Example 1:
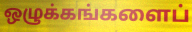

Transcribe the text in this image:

ஒழுக்கங்களைப்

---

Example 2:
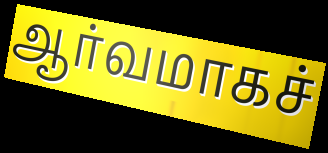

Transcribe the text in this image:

ஆர்வமாகச்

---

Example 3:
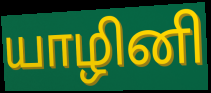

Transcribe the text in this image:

யாழினி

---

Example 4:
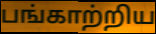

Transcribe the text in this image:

பங்காற்றிய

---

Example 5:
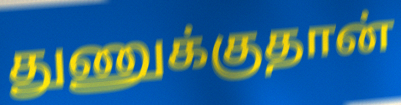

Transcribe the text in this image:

துணுக்குதான்